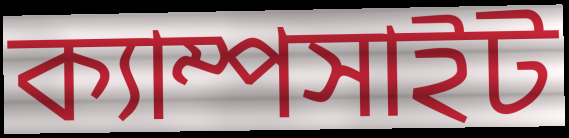
ক্যাম্পসাইট